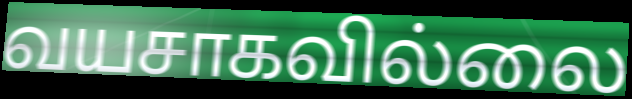
வயசாகவில்லை